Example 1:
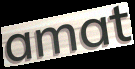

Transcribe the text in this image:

amat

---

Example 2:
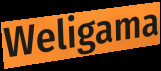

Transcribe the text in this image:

Weligama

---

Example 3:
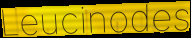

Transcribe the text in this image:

Leucinodes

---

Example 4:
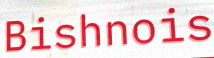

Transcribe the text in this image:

Bishnois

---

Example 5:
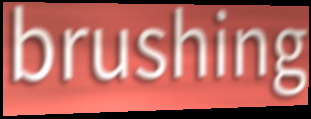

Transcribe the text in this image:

brushing